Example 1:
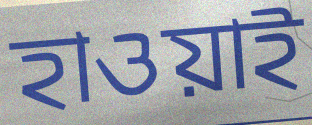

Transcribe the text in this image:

হাওয়াই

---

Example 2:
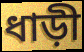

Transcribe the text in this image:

ধাড়ী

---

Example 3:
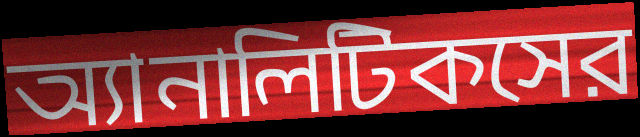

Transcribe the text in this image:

অ্যানালিটিকসের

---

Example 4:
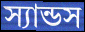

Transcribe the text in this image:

স্যান্ডস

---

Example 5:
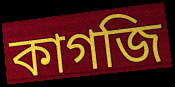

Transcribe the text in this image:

কাগজি